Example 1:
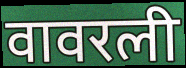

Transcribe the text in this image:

वावरली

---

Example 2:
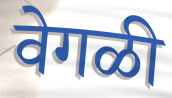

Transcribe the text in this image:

वेगळी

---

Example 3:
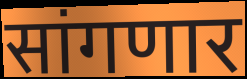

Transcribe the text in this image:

सांगणार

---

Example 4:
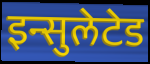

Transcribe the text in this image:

इन्सुलेटेड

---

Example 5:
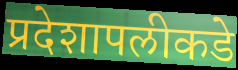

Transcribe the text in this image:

प्रदेशापलीकडे